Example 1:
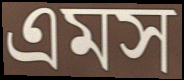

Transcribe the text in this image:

এমস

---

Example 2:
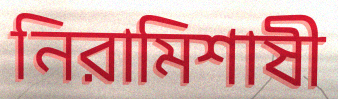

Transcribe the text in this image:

নিরামিশাষী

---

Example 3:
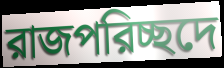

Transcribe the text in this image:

রাজপরিচ্ছদে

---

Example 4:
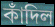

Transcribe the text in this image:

কাঁদিল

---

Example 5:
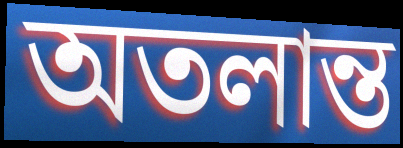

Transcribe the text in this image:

অতলান্ত